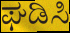
ಘಡಿಸಿ